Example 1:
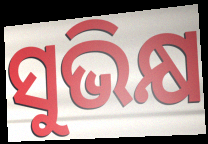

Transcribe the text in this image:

ସୁଭିକ୍ଷ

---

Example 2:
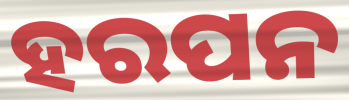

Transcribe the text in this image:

ହରପନ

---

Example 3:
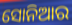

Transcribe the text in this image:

ସୋନିଆର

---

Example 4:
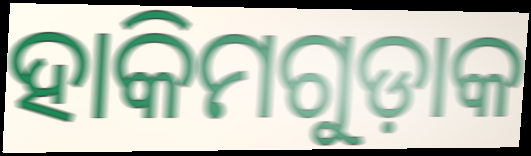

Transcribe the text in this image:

ହାକିମଗୁଡ଼ାକ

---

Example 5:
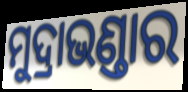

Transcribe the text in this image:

ମୁଦ୍ରାଭଣ୍ଡାର